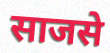
साजसे